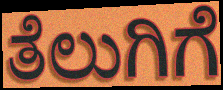
ತೆಲುಗಿಗೆ